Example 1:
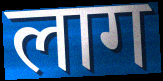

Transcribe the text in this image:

लाग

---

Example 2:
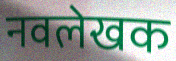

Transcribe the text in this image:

नवलेखक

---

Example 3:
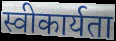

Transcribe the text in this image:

स्वीकार्यता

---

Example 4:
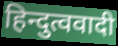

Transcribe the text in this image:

हिन्दुत्ववादी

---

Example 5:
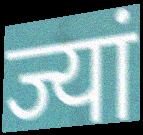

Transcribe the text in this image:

ज्यां